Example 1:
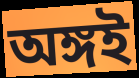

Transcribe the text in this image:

অঙ্গই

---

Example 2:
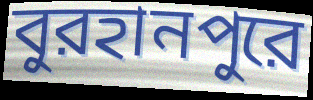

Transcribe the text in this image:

বুরহানপুরে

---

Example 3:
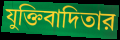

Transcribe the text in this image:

যুক্তিবাদিতার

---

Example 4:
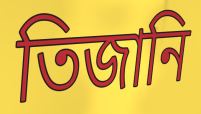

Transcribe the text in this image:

তিজানি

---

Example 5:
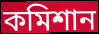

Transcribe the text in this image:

কমিশান